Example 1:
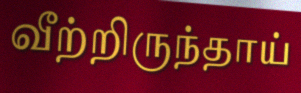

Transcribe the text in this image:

வீற்றிருந்தாய்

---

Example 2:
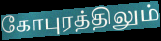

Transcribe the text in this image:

கோபுரத்திலும்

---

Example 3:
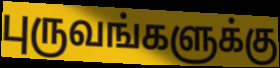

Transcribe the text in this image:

புருவங்களுக்கு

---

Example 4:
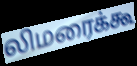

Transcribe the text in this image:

லிமரைக்கூ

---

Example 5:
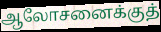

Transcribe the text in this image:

ஆலோசனைக்குத்